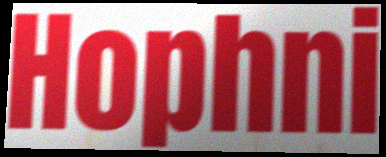
Hophni